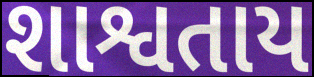
શાશ્વતાય